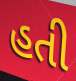
હતી